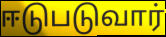
ஈடுபடுவார்